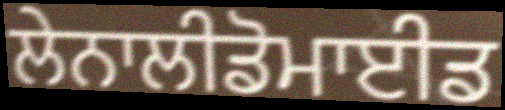
ਲੇਨਾਲੀਡੋਮਾਈਡ